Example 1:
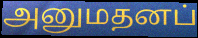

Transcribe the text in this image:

அனுமதனப்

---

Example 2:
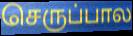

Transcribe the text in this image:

செருப்பால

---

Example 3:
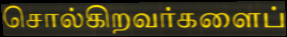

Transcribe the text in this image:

சொல்கிறவர்களைப்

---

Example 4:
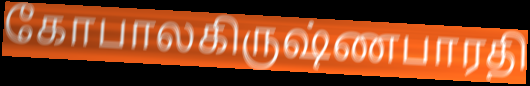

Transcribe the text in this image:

கோபாலகிருஷ்ணபாரதி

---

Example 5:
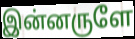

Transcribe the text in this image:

இன்னருளே